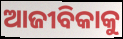
ଆଜୀବିକାକୁ